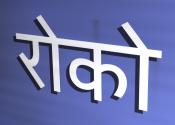
रोको